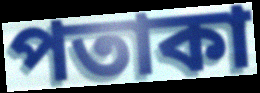
পতাকা